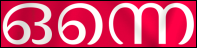
ഒന്നെ